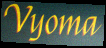
Vyoma